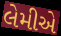
લેમીએ